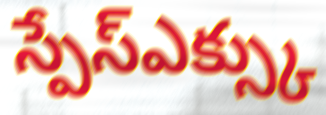
స్పేస్ఎక్స్కు